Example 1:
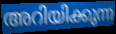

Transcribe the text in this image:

അറിയിക്കുന്ന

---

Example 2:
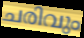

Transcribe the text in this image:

ചരിവും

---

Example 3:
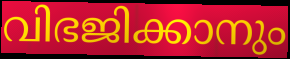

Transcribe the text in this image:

വിഭജിക്കാനും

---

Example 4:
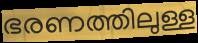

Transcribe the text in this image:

ഭരണത്തിലുള്ള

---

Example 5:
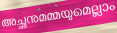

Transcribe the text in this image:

അച്ഛനുമമ്മയുമെല്ലാം